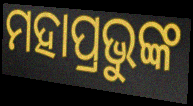
ମହାପ୍ରଭୁଙ୍କ